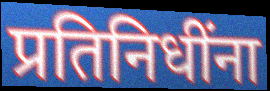
प्रतिनिधींना